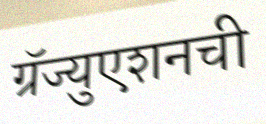
ग्रॅज्युएशनची